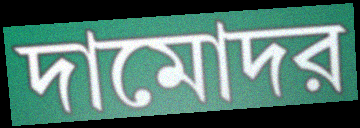
দামোদর